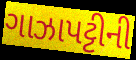
ગાઝાપટ્ટીની